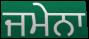
ਜਮੇਨਾ